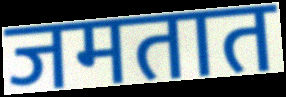
जमतात